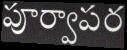
పూర్వాపర